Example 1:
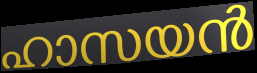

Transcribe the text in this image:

ഹാസയൻ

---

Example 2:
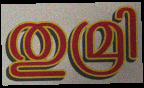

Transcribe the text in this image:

തുമ്രി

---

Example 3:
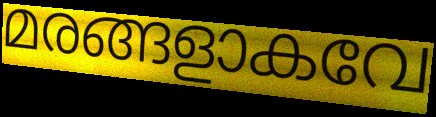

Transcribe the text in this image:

മരങ്ങളാകവേ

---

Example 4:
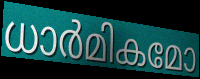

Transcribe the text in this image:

ധാർമികമോ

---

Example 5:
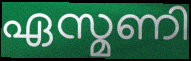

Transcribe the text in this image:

ഏസ്മണി